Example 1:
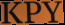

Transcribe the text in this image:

KPY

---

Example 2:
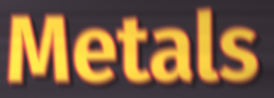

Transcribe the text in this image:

Metals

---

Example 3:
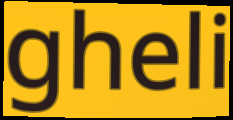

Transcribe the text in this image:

gheli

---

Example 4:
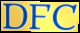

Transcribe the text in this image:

DFC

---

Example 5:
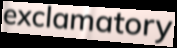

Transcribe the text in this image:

exclamatory